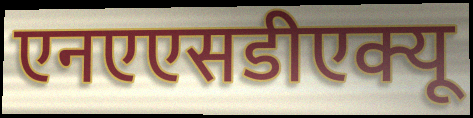
एनएएसडीएक्यू